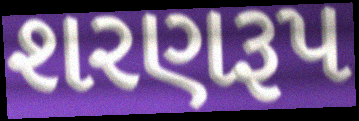
શરણરૂપ